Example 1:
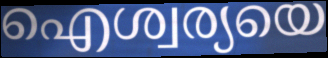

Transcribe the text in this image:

ഐശ്വര്യയെ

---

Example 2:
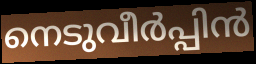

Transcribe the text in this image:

നെടുവീർപ്പിൻ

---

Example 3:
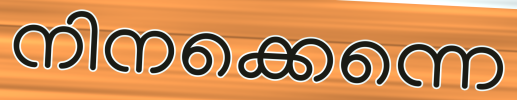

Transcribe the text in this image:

നിനക്കെന്നെ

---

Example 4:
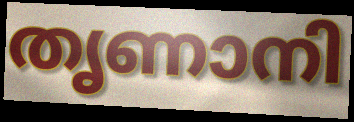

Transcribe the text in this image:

തൃണാനി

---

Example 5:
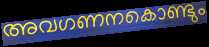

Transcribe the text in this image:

അവഗണനകൊണ്ടും